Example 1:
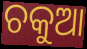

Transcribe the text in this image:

ଚକୁଆ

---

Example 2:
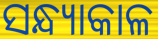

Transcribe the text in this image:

ସନ୍ଧ୍ୟାକାଳ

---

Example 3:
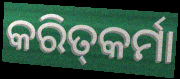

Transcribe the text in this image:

କରିତ୍‍କର୍ମା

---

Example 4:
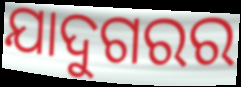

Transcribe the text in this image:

ଯାଦୁଗରର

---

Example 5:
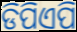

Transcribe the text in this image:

ଡିପିଏପି